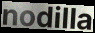
nodilla